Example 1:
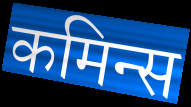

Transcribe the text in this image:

कमिन्स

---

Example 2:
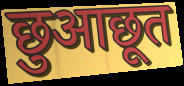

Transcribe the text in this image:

छुआछूत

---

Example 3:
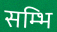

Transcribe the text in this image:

सम्भि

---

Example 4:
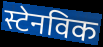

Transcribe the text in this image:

स्टेनविक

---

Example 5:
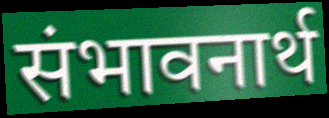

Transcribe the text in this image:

संभावनार्थ